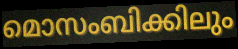
മൊസംബിക്കിലും